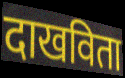
दाखविता